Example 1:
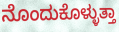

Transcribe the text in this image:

ನೊಂದುಕೊಳ್ಳುತ್ತಾ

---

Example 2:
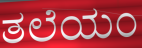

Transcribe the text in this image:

ತಲೆಯಂ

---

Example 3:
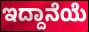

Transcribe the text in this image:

ಇದ್ದಾನೆಯೆ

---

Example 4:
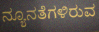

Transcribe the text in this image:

ನ್ಯೂನತೆಗಳಿರುವ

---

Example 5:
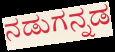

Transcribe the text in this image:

ನಡುಗನ್ನಡ